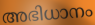
അഭിധാനം